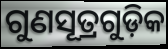
ଗୁଣସୂତ୍ରଗୁଡ଼ିକ